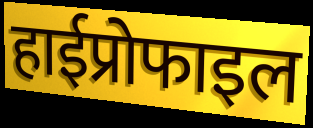
हाईप्रोफाइल